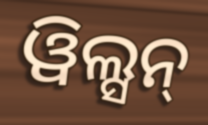
ୱିଲ୍ସନ୍